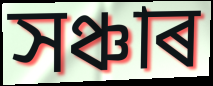
সঞ্চাৰ